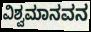
ವಿಶ್ವಮಾನವನ